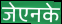
जेएनके